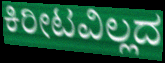
ಕಿರೀಟವಿಲ್ಲದ